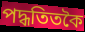
পদ্ধতিতকৈ